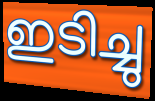
ഇടിച്ചു